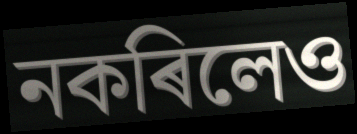
নকৰিলেও